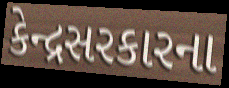
કેન્દ્રસરકારના